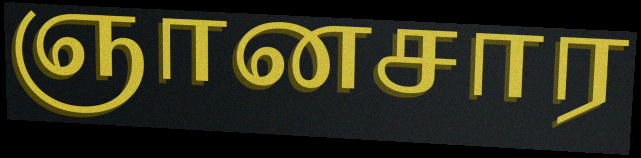
ஞானசார